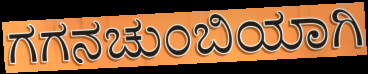
ಗಗನಚುಂಬಿಯಾಗಿ